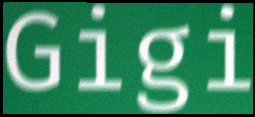
Gigi